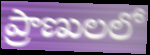
ప్రాణులలో